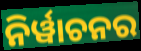
ନିର୍ୱାଚନର